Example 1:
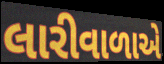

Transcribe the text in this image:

લારીવાળાએ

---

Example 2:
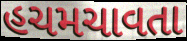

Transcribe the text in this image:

હચમચાવતા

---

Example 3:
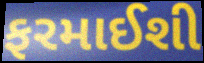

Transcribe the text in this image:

ફરમાઈશી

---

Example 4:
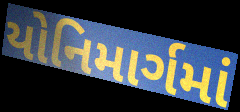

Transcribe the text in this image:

યોનિમાર્ગમાં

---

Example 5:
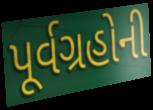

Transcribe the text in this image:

પૂર્વગ્રહોની